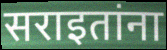
सराइतांना